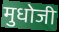
मुधोजी